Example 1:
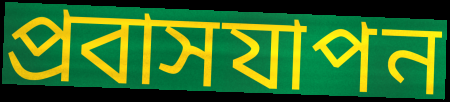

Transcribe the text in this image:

প্রবাসযাপন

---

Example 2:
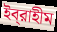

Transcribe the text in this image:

ইব্‌রাহীম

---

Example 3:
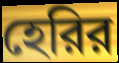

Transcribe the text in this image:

হেরির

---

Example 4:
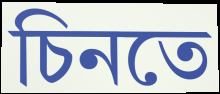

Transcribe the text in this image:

চিনতে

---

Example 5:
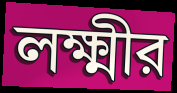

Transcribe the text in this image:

লক্ষ্মীর